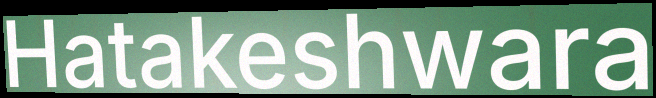
Hatakeshwara